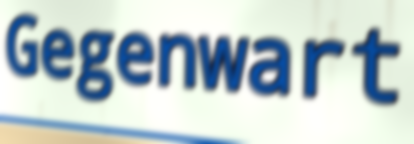
Gegenwart